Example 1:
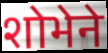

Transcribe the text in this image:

शोभेने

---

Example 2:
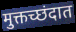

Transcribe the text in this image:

मुक्तच्छंदात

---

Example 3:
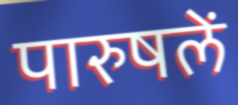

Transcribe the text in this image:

पारुषलें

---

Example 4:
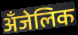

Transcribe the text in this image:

अँजेलिक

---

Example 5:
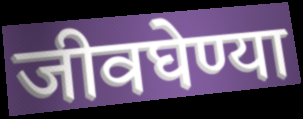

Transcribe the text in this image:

जीवघेण्या